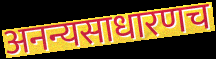
अनन्यसाधारणच